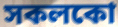
সকলকো